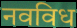
नवविध